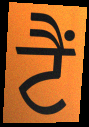
ਟੈੰ